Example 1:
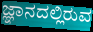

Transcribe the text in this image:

ಜ್ಞಾನದಲ್ಲಿರುವ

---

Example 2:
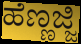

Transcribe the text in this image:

ಹೆಣ್ಣಜ್ಜಿ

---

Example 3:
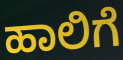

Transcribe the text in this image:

ಹಾಲಿಗೆ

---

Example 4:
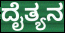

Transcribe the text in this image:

ದೈತ್ಯನ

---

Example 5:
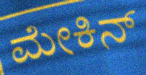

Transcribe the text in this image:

ಮೇಕಿನ್